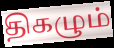
திகழும்